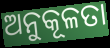
ଅନୁକୂଳତା